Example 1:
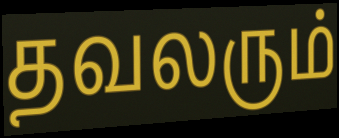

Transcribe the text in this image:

தவலரும்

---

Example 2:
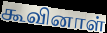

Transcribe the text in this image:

கூவினாள்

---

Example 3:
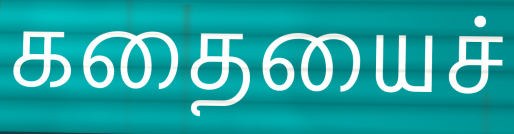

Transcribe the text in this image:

கதையைச்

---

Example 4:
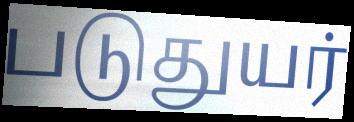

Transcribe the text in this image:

படுதுயர்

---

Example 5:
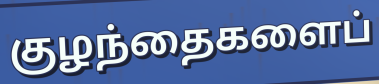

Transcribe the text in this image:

குழந்தைகளைப்